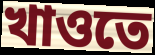
খাওতে